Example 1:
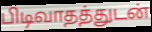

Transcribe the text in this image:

பிடிவாதத்துடன்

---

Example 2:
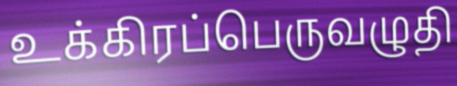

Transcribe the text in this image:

உக்கிரப்பெருவழுதி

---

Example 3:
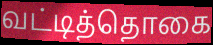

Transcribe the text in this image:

வட்டித்தொகை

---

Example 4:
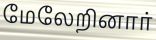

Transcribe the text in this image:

மேலேறினார்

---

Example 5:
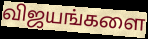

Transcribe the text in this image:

விஜயங்களை